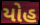
યોહ